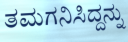
ತಮಗನಿಸಿದ್ದನ್ನು